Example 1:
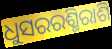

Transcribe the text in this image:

ଧୁସରରଶ୍ମିରାଶି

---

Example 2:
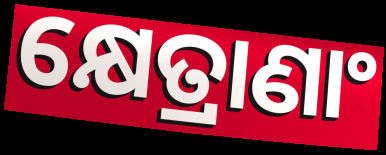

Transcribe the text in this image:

କ୍ଷେତ୍ରାଣାଂ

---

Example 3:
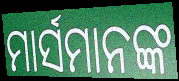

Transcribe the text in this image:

ମାର୍ସମାନଙ୍କ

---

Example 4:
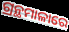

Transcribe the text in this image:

ଗ୍ରନ୍ଥମାଳାରେ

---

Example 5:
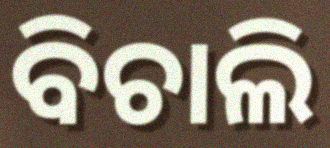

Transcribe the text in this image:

ବିଚାଲି